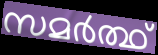
സമർത്ഥ്